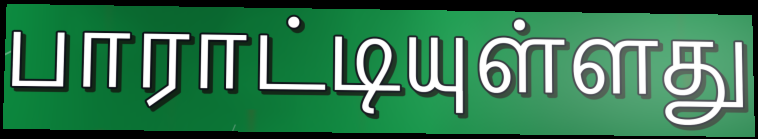
பாராட்டியுள்ளது